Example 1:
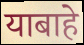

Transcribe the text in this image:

याबाहे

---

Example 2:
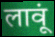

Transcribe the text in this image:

लावूं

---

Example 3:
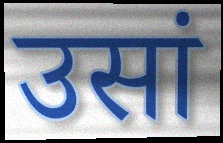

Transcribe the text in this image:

उसां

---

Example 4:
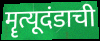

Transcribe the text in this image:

मॄत्यूदंडाची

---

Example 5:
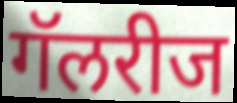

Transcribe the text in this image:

गॅलरीज